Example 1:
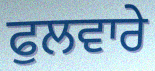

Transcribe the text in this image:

ਫੁਲਵਾਰੇ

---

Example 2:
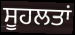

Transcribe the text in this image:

ਸੂਹਲਤਾਂ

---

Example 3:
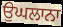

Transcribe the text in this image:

ਉਘਲਾਨਾ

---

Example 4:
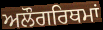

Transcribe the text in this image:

ਅਲੌਗਰਿਥਮਾਂ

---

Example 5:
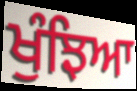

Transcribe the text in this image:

ਖੁੰਝਿਆ